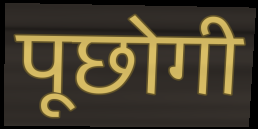
पूछोगी